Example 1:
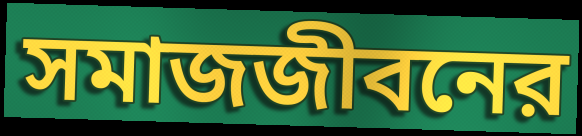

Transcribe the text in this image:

সমাজজীবনের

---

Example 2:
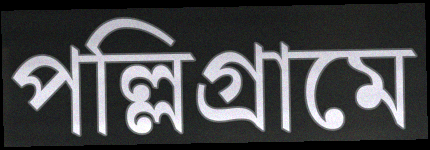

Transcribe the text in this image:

পল্লিগ্রামে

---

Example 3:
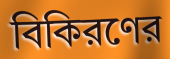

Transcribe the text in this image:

বিকিরণের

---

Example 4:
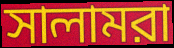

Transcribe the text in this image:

সালামরা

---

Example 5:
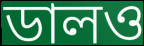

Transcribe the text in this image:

ডালও